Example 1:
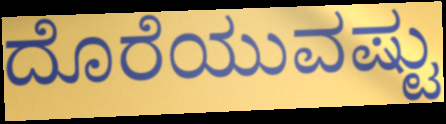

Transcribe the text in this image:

ದೊರೆಯುವಷ್ಟು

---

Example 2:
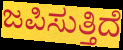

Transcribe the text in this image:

ಜಪಿಸುತ್ತಿದೆ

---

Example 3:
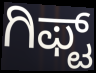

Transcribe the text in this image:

ಗಿಫ್ಟ್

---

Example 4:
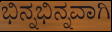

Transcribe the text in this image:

ಭಿನ್ನಭಿನ್ನವಾಗಿ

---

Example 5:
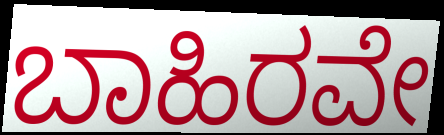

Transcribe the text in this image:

ಬಾಹಿರವೇ